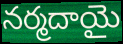
నర్మదాయై